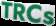
TRCs